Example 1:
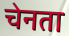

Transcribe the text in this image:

चेनता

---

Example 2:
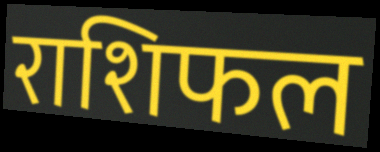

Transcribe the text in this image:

राशिफल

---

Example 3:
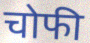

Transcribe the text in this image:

चोफी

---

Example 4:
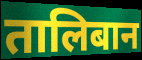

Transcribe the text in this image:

तालिबान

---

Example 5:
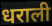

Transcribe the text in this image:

धराली